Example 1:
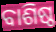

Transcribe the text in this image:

ବାଶିଷ୍ଠ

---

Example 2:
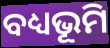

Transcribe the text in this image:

ବଧ୍ୟଭୂମି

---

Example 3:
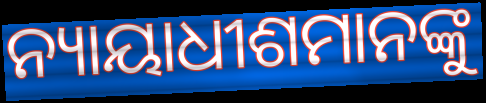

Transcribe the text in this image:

ନ୍ୟାୟାଧୀଶମାନଙ୍କୁ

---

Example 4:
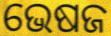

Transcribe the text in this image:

ଭେଷଜ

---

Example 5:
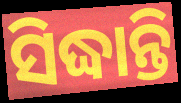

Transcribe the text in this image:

ସିଦ୍ଧାନ୍ତି